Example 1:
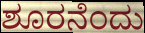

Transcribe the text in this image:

ಶೂರನೆಂದು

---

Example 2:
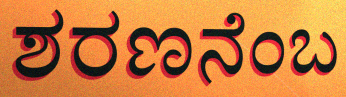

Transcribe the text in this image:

ಶರಣನೆಂಬ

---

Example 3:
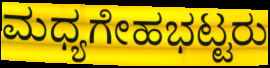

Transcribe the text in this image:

ಮಧ್ಯಗೇಹಭಟ್ಟರು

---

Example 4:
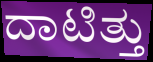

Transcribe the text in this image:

ದಾಟಿತ್ತು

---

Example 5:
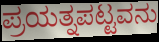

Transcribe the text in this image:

ಪ್ರಯತ್ನಪಟ್ಟವನು